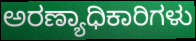
ಅರಣ್ಯಾಧಿಕಾರಿಗಳು